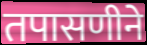
तपासणीने